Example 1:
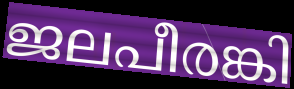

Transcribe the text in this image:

ജലപീരങ്കി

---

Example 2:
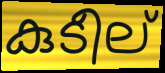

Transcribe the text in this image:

കുടീല്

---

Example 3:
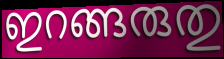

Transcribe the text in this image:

ഇറങ്ങരുതു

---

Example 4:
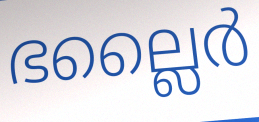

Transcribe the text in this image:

ഭല്ലൈർ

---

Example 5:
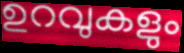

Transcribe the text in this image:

ഉറവുകളും